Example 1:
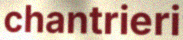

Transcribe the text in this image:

chantrieri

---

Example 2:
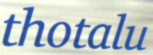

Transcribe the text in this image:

thotalu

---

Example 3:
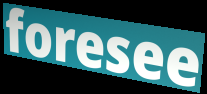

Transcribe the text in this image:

foresee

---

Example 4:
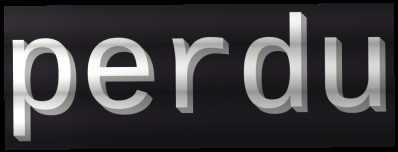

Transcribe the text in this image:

perdu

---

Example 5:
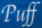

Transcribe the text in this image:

Puff